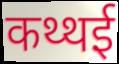
कथ्थई